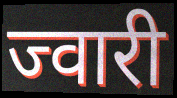
ज्वारी